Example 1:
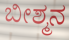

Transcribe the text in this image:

ಬೀಶ್ಮನ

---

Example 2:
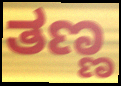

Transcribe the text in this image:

ತಣ್ಣ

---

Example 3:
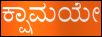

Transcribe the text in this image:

ಕ್ಷಾಮಯೇ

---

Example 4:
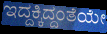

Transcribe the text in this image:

ಇದ್ದಕ್ಕಿದ್ದಂತೆಯೇ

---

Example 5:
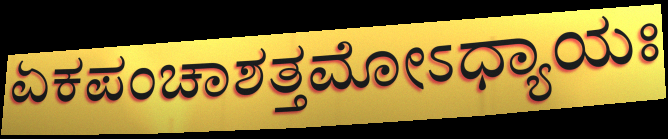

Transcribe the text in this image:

ಏಕಪಂಚಾಶತ್ತಮೋಽಧ್ಯಾಯಃ